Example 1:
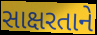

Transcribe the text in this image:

સાક્ષરતાને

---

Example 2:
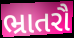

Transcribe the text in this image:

ભ્રાતરૌ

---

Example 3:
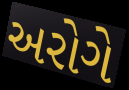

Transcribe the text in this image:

અરોગે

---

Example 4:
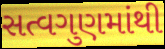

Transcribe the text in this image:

સત્વગુણમાંથી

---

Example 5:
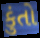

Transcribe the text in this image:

કુંતો